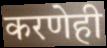
करणेही